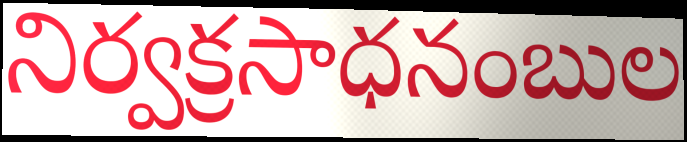
నిర్వక్రసాధనంబుల